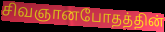
சிவஞானபோதத்தின்